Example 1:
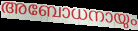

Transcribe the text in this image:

അബോധനായും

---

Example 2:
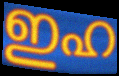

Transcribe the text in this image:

ഇഹ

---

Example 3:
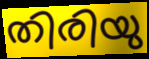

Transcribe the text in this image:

തിരിയു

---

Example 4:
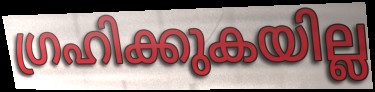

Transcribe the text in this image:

ഗ്രഹിക്കുകയില്ല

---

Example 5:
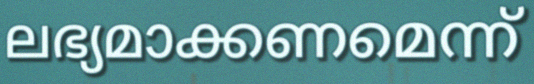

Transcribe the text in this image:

ലഭ്യമാക്കണമെന്ന്